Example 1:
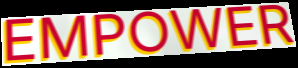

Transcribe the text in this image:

EMPOWER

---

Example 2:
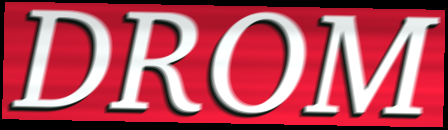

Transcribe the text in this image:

DROM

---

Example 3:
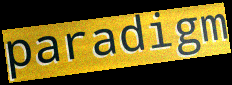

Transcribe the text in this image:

paradigm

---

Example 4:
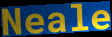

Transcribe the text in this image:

Neale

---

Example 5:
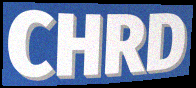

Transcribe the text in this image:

CHRD